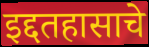
इद्दतहासाचे